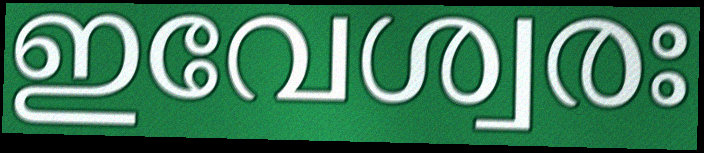
ഇവേശ്വരഃ